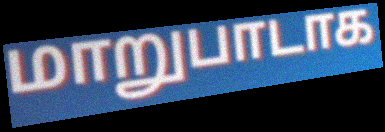
மாறுபாடாக